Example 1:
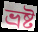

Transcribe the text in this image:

ভ্রষ্ট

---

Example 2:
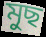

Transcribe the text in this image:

মুছ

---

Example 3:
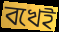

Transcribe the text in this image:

বখেই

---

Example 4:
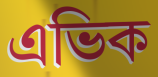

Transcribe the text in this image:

এভিক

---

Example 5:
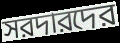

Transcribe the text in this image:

সরদারদের